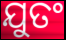
ଯୁତଂ